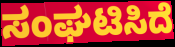
ಸಂಘಟಿಸಿದೆ